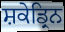
ਸ਼ਕੇਡ੍ਰਿਨ